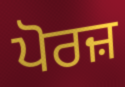
ਪੋਰਜ਼